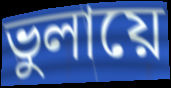
ভুলায়ে